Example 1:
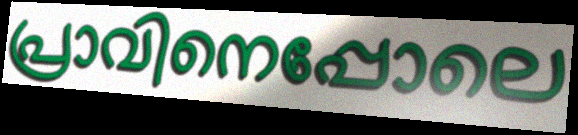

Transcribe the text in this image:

പ്രാവിനെപ്പോലെ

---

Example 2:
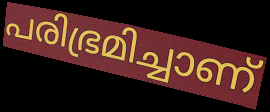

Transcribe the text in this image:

പരിഭ്രമിച്ചാണ്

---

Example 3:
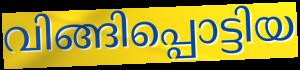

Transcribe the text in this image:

വിങ്ങിപ്പൊട്ടിയ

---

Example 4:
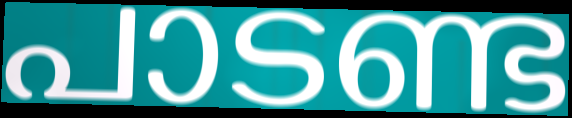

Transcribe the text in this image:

പാടണ്ട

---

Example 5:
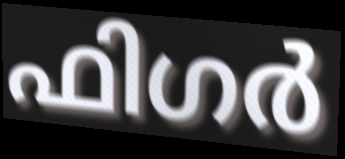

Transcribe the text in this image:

ഫിഗർ